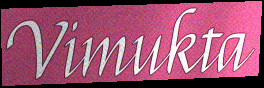
Vimukta